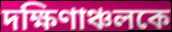
দক্ষিণাঞ্চলকে